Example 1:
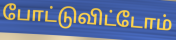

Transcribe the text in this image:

போட்டுவிட்டோம்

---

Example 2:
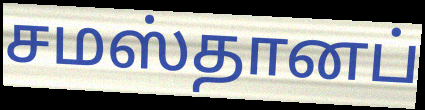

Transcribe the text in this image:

சமஸ்தானப்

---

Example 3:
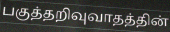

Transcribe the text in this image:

பகுத்தறிவுவாதத்தின்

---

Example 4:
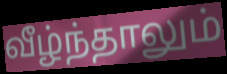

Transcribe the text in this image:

வீழ்ந்தாலும்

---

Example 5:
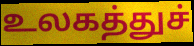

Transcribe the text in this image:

உலகத்துச்